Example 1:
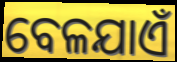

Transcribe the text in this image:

ବେଳଯାଏଁ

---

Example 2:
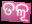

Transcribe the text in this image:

ତଳୂ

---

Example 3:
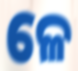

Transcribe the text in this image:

ଳେ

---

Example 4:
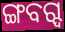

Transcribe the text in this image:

ଙ୍ଗବଗ୍ଦ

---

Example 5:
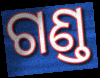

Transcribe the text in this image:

ଗଣ୍ଡ